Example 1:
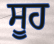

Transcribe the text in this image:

ਸੂਹ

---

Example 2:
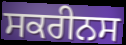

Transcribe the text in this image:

ਸਕਰੀਨਸ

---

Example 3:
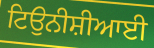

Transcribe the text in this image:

ਟਿਉਨੀਸ਼ੀਆਈ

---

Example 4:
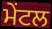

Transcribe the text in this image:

ਮੇਂਟਲ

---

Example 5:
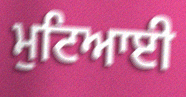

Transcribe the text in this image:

ਮੁਟਿਆਈ